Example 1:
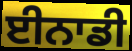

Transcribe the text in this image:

ਈਨਾਡੀ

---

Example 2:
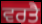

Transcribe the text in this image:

ਵਰਤੈ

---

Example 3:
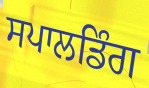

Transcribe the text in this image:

ਸਪਾਲਡਿੰਗ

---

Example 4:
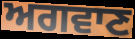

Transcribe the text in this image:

ਅਗਵਾਣ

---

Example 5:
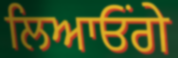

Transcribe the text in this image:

ਲਿਆਓਂਗੇ